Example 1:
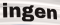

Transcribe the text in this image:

ingen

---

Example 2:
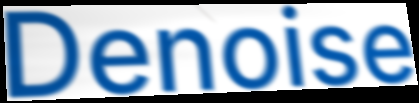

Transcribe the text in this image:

Denoise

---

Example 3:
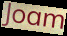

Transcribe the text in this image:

Joam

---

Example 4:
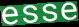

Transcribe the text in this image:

esse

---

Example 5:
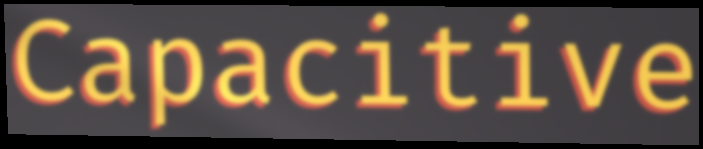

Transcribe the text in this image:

Capacitive